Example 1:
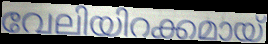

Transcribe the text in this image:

വേലിയിറക്കമായ്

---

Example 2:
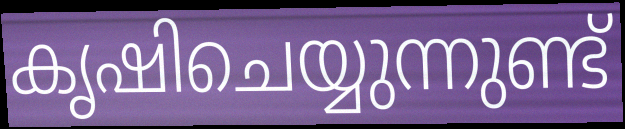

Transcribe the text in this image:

കൃഷിചെയ്യുന്നുണ്ട്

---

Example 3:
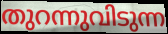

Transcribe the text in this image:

തുറന്നുവിടുന്ന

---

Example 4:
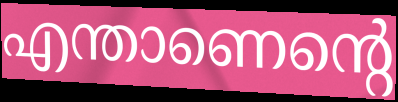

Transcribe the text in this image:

എന്താണെന്റെ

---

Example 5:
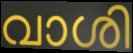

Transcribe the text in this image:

വാശി